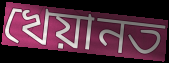
খেয়ানত